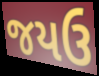
જયઉ